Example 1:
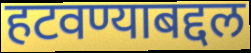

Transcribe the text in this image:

हटवण्याबद्दल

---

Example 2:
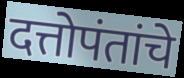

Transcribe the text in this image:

दत्तोपंतांचे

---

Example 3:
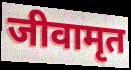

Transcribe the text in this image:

जीवामृत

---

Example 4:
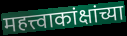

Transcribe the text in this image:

महत्त्वाकांक्षांच्या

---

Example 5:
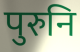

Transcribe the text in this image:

पुरुनि